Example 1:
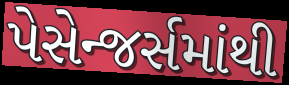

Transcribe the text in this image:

પેસેન્જર્સમાંથી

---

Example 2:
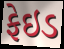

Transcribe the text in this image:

ફેઇડ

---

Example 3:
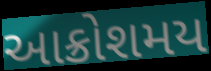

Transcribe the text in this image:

આક્રોશમય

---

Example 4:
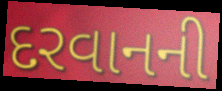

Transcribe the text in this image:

દરવાનની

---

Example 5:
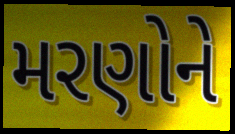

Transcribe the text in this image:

મરણોને